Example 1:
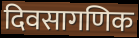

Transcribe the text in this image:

दिवसागणिक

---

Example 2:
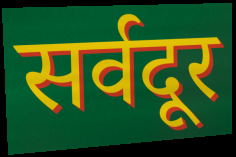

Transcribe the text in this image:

सर्वदूर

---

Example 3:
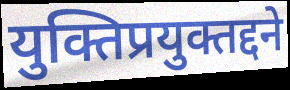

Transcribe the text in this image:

युक्तिप्रयुक्तद्दने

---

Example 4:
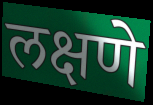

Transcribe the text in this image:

लक्षणे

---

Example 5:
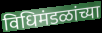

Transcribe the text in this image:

विधिमंडळांच्या